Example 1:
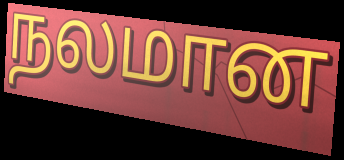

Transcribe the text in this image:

நலமான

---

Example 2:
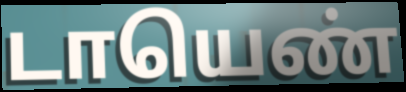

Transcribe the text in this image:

டாயெண்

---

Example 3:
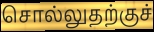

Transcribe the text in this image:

சொல்லுதற்குச்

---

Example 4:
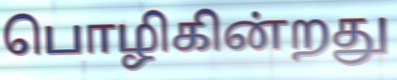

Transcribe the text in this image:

பொழிகின்றது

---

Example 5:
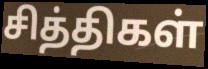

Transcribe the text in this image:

சித்திகள்